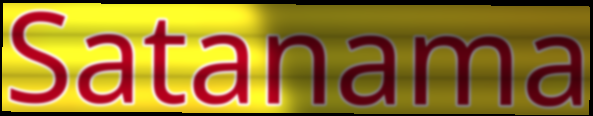
Satanama